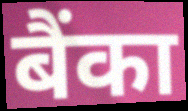
बैंका